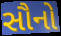
સૌનો